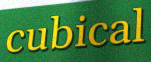
cubical